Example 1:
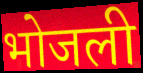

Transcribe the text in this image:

भोजली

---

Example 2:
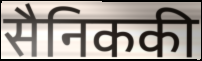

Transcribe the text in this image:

सैनिककी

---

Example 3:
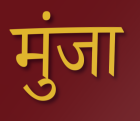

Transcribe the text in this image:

मुंजा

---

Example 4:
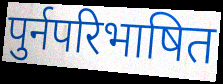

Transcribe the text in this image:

पुर्नपरिभाषित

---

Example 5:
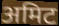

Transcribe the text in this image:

अमिट